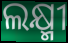
ଲକ୍ଷ୍ମୀ